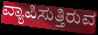
ವ್ಯಾಪಿಸುತ್ತಿರುವ